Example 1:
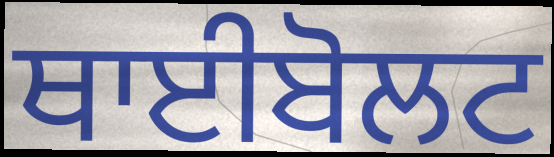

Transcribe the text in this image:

ਥਾਈਬੋਲਟ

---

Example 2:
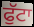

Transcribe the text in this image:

ਫੁੱਟਾ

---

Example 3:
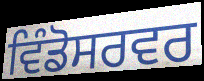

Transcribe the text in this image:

ਵਿੰਡੋਸਰਵਰ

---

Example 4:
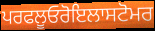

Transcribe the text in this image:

ਪਰਫਲੂਓਰੋਇਲਾਸਟੋਮਰ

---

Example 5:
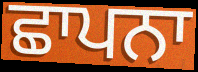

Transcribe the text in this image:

ਛਾਪਨਾ